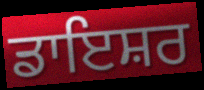
ਡਾਇਸ਼ਰ